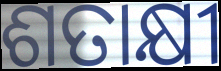
ଶତାକ୍ଷୀ